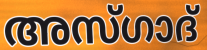
അസ്ഗാദ്